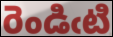
రెండిఁటి